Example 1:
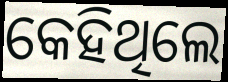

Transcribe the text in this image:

କେହିଥିଲେ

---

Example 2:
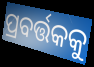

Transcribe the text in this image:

ପ୍ରବର୍ତ୍ତକକୁ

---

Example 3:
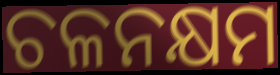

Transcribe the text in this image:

ଚଳନକ୍ଷମ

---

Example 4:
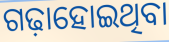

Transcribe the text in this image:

ଗଢ଼ାହୋଇଥିବା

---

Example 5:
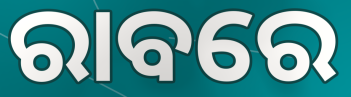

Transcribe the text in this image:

ରାବରେ